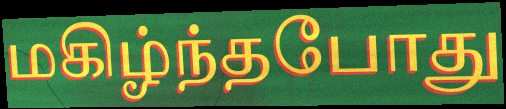
மகிழ்ந்தபோது